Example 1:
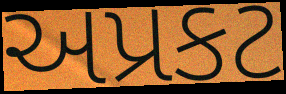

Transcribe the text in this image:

અપ્રકટ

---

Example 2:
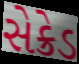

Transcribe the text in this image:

સેક્રેડ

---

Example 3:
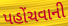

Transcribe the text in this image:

પહોંચવાની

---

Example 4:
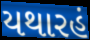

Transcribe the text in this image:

યથારહં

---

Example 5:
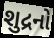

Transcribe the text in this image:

શુદ્રનો